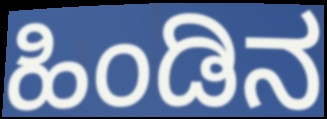
ಹಿಂಡಿನ